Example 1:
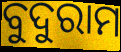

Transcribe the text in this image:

ବୁଦୁରାମ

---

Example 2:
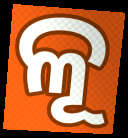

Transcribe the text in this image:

ଳୂ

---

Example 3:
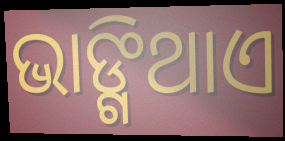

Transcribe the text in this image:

ଭାଙ୍ଗିଥାଏ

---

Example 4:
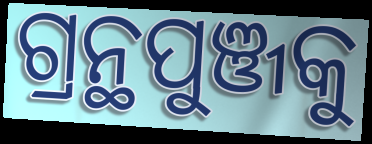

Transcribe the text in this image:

ଗ୍ରନ୍ଥପୁଞ୍ଜକୁ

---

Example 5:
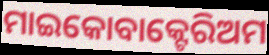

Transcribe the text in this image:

ମାଇକୋବାକ୍ଟେରିଅମ